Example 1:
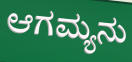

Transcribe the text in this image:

ಆಗಮ್ಯನು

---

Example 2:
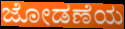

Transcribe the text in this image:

ಜೋಡಣೆಯ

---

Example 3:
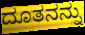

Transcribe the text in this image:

ದೂತನನ್ನು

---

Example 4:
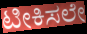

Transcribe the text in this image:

ಟೀಕಿಸಲೇ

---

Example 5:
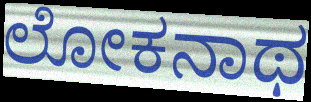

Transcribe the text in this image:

ಲೋಕನಾಥ